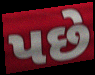
પછે